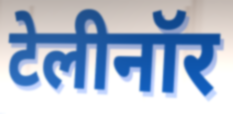
टेलीनॉर